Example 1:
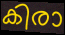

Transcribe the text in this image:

കിരാ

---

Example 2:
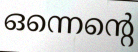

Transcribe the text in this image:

ഒന്നെന്റെ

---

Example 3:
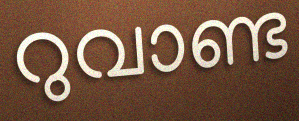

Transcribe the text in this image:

റുവാണ്ട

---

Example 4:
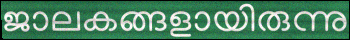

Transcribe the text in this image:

ജാലകങ്ങളായിരുന്നു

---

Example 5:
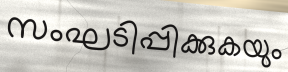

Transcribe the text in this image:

സംഘടിപ്പിക്കുകയും